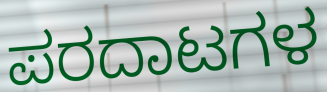
ಪರದಾಟಗಳ